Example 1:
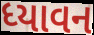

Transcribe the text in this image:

ધ્યાવન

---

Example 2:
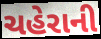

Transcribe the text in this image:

ચહેરાની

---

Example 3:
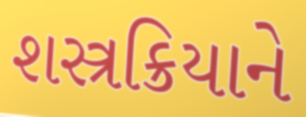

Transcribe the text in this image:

શસ્ત્રક્રિયાને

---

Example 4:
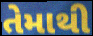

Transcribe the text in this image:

તેમાથી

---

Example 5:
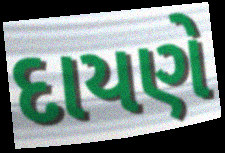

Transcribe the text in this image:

દાયણે